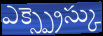
ఎక్స్ప్రెస్కు